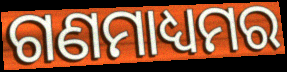
ଗଣମାଧ୍ୟମର